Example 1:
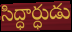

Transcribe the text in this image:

సిద్ధార్ధుడు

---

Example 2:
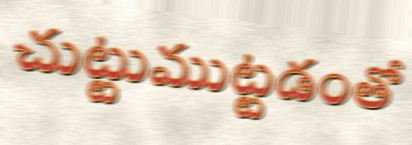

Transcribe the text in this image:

చుట్టుముట్టడంతో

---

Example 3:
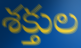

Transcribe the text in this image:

శక్తుల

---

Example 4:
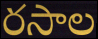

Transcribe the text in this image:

రసాల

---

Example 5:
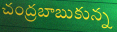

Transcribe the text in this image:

చంద్రబాబుకున్న